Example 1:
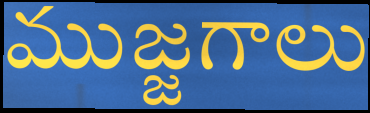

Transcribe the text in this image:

ముజ్జగాలు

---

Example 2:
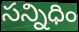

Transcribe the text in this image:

సన్నిధిం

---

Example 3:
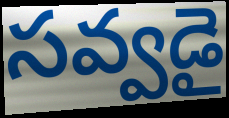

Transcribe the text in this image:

సవ్వడై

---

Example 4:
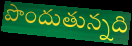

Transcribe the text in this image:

పొందుతున్నది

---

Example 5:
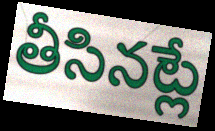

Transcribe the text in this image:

తీసినట్లే